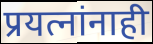
प्रयत्नांनाही